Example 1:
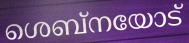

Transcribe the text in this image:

ശെബ്നയോട്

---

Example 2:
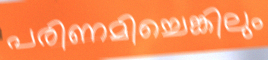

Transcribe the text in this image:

പരിണമിച്ചെങ്കിലും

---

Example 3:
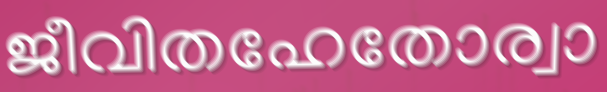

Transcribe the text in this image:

ജീവിതഹേതോര്വാ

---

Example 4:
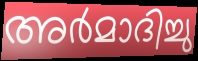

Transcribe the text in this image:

അർമാദിച്ചു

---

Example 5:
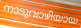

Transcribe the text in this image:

നാടുവാഴിയായ